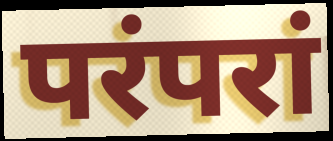
परंपरां